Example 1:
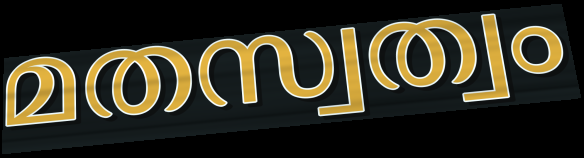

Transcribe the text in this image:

മതസ്വത്വം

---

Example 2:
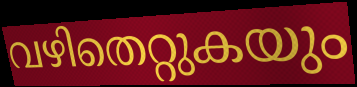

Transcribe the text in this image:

വഴിതെറ്റുകയും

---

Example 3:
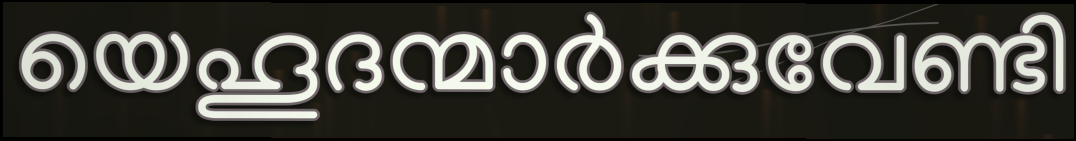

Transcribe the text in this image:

യെഹൂദന്മാർക്കുവേണ്ടി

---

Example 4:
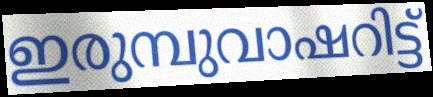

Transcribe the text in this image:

ഇരുമ്പുവാഷറിട്ട്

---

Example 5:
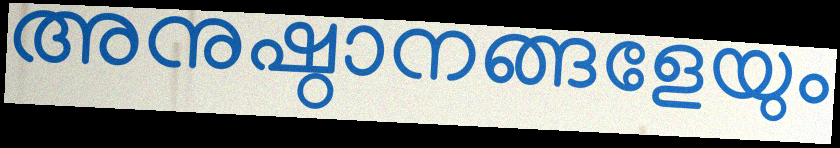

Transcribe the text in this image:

അനുഷ്ഠാനങ്ങളേയും